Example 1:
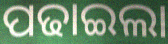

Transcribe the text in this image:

ପଢାଇଲା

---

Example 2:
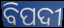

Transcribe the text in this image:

ବିପଦୀ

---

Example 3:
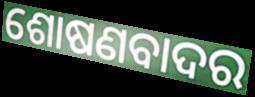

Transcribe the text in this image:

ଶୋଷଣବାଦର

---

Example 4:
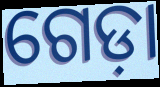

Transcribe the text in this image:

ଗେଡ଼ା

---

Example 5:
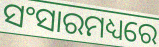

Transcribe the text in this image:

ସଂସାରମଧ୍ୟରେ